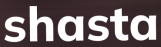
shasta